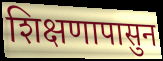
शिक्षणापासुन